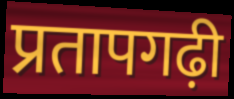
प्रतापगढ़ी